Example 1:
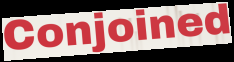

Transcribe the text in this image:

Conjoined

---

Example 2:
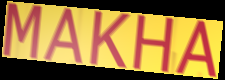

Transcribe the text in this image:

MAKHA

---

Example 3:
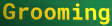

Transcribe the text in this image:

Grooming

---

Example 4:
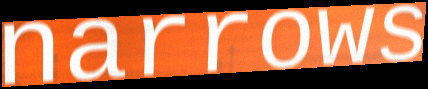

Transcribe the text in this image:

narrows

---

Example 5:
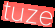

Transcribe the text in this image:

tuze